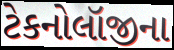
ટેકનોલૉજીના